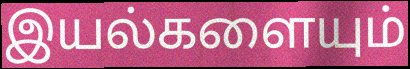
இயல்களையும்